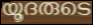
യൂദരുടെ